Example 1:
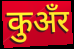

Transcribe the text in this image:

कुअँर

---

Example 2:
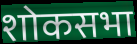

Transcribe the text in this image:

शोकसभा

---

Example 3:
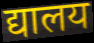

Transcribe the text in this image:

द्यालय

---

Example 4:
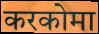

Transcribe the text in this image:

करकोमा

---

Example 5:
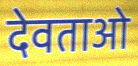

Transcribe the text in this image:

देवताओ